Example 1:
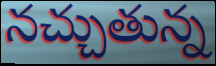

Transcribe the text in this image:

నచ్చుతున్న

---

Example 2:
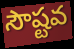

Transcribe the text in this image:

సౌష్టవ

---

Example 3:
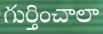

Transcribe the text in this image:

గుర్తించాలా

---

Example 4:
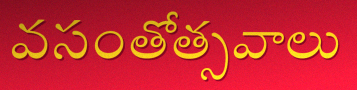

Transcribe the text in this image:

వసంతోత్సవాలు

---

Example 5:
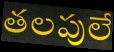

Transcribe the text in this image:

తలపులే